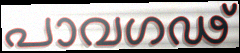
പാവഗഢ്